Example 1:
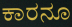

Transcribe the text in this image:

ಕಾರನೂ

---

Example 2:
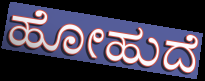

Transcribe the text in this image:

ಹೋಹುದೆ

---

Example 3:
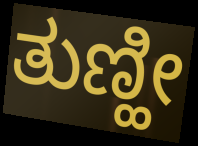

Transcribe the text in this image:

ತುಣ್ಹೀ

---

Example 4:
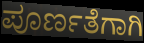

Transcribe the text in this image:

ಪೂರ್ಣತೆಗಾಗಿ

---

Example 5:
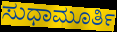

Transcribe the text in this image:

ಸುಧಾಮೂರ್ತಿ